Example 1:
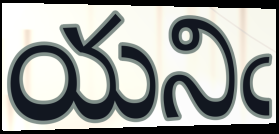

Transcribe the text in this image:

యనిఁ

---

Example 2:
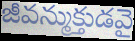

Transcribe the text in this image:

జీవన్ముక్తుడవై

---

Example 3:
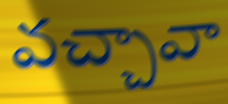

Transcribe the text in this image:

వచ్చావా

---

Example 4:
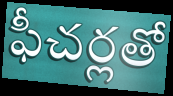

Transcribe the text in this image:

ఫీచర్లతో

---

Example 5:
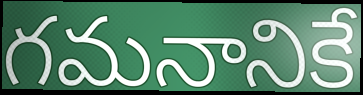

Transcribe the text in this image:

గమనానికే